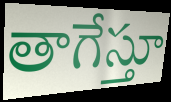
తాగేస్తూ